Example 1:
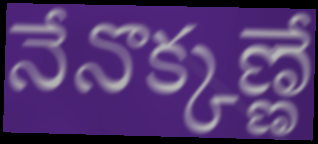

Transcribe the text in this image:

నేనొక్కణ్ణే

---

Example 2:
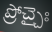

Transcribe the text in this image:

ప్రోచ్చైః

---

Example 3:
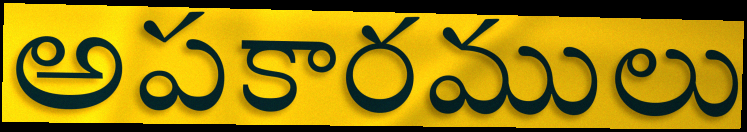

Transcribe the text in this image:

అపకారములు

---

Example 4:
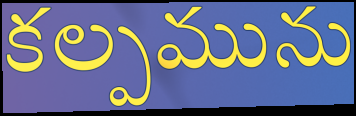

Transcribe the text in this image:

కల్పమును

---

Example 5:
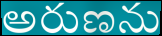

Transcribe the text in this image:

అరుణను